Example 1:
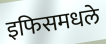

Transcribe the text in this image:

इफिसमधले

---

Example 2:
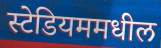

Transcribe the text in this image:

स्टेडियममधील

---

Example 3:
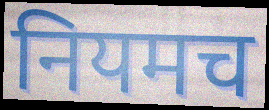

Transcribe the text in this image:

नियमच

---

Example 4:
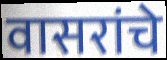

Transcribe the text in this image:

वासरांचे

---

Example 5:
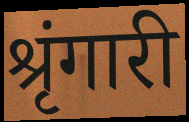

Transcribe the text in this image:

श्रृंगारी